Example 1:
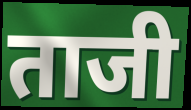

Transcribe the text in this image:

ताजी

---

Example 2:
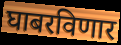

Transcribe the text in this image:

घाबरविणार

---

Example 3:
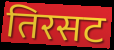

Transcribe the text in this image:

तिरसट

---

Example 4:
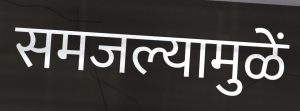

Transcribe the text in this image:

समजल्यामुळें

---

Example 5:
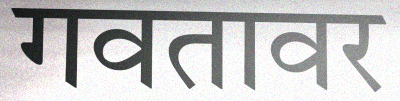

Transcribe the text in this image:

गवतावर